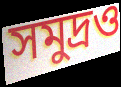
সমুদ্রও